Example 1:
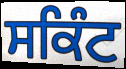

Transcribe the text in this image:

ਸਕਿੰਟ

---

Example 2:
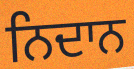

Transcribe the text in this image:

ਨਿਦਾਨ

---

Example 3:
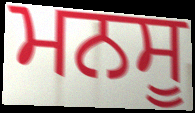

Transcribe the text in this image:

ਮਨਸੂ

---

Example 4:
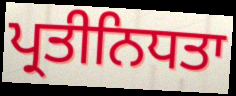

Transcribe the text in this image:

ਪ੍ਰਤੀਨਿਧਤਾ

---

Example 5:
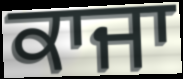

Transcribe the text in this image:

ਕਾਜਾ